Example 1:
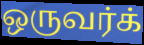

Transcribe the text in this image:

ஒருவர்க்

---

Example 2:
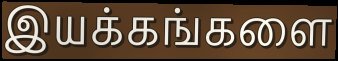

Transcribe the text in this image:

இயக்கங்களை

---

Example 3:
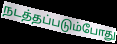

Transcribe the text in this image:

நடத்தப்படும்போது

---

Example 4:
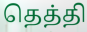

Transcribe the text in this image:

தெத்தி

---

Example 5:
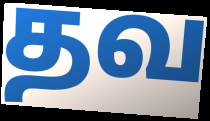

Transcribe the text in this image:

தவ